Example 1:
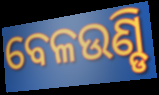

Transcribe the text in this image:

ବେଳଉଣ୍ଡି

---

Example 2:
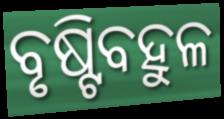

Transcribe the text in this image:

ବୃଷ୍ଟିବହୁଳ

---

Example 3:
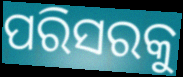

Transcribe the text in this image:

ପରିସରକୁ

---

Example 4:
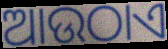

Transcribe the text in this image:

ଆଉଠାଏ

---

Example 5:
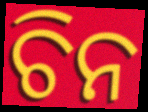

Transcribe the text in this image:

ଚିନ